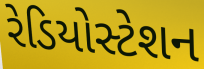
રેડિયોસ્ટેશન